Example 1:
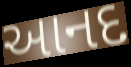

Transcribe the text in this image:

આનદ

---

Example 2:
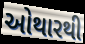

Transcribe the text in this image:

ઓથારથી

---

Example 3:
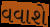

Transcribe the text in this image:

વવાશે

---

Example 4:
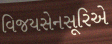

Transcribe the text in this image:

વિજયસેનસૂરિએ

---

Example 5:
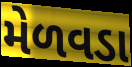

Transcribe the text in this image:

મેળવડા